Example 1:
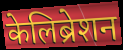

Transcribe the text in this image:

केलिब्रेशन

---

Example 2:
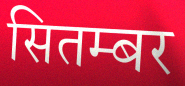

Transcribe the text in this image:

सितम्बर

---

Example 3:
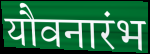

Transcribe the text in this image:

यौवनारंभ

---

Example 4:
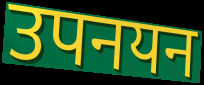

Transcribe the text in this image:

उपनयन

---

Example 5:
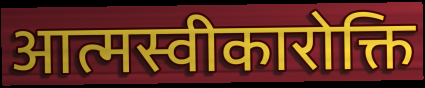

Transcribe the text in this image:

आत्मस्वीकारोक्ति